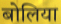
बोलिया